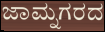
ಜಾಮ್ನಗರದ